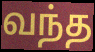
வந்த